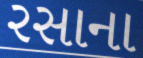
રસાના